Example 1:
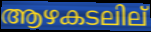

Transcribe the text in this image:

ആഴകടലില്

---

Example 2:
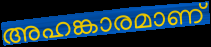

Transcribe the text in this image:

അഹങ്കാരമാണ്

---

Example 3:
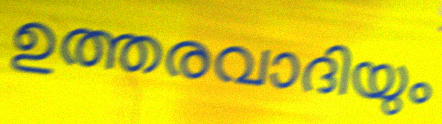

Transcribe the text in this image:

ഉത്തരവാദിയും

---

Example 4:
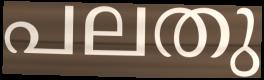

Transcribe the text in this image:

പലതു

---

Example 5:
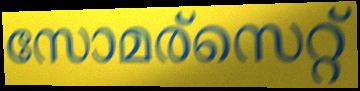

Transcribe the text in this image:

സോമര്സെറ്റ്